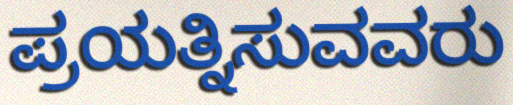
ಪ್ರಯತ್ನಿಸುವವರು